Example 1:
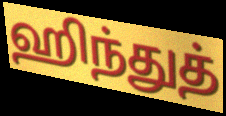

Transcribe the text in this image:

ஹிந்துத்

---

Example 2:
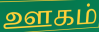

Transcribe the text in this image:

ஊகம்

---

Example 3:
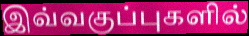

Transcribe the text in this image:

இவ்வகுப்புகளில்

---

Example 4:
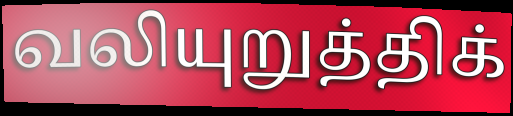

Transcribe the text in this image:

வலியுறுத்திக்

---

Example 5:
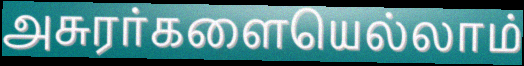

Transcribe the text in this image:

அசுரர்களையெல்லாம்